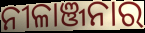
ନୀଳାଞ୍ଜନାର